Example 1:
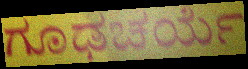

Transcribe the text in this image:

ಗೂಢಚರ್ಯೆ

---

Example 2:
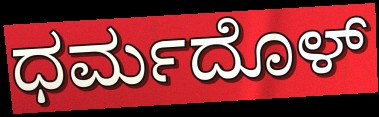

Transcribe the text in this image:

ಧರ್ಮದೊಳ್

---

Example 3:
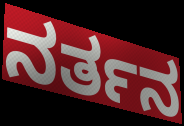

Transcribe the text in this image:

ನರ್ತನ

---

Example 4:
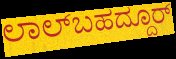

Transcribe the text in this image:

ಲಾಲ್‌ಬಹದ್ದೂರ್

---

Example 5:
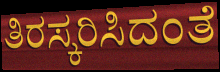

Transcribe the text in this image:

ತಿರಸ್ಕರಿಸಿದಂತೆ